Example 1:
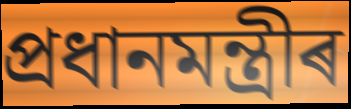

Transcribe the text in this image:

প্ৰধানমন্ত্ৰীৰ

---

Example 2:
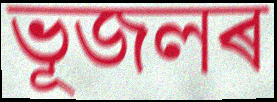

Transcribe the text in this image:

ভূজলৰ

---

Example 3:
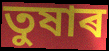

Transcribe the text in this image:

তুষাৰ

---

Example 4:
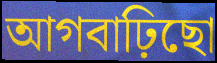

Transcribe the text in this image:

আগবাঢ়িছো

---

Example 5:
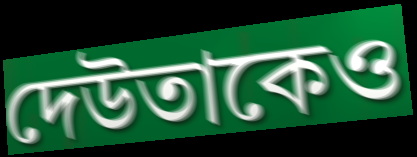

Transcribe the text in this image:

দেউতাকেও